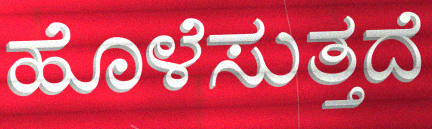
ಹೊಳೆಸುತ್ತದೆ